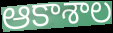
ఆకాశాల